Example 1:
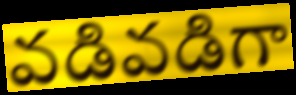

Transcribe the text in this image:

వడివడిగా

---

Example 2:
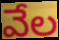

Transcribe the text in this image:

వేల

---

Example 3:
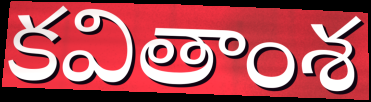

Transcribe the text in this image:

కవితాంశ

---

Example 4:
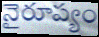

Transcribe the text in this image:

నైరూప్యం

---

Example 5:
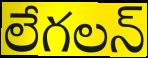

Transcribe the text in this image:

లేగలన్